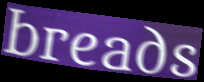
breads